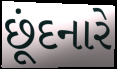
છૂંદનારે